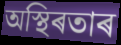
অস্থিৰতাৰ